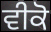
ਵੀਕੋ